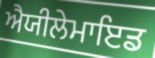
ਐਯੀਲੇਮਾਇਡ